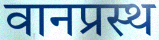
वानप्रस्थ